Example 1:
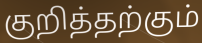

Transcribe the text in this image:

குறித்தற்கும்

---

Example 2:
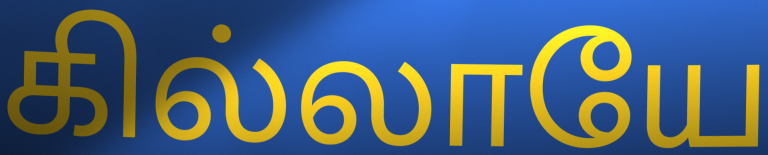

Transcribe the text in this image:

கில்லாயே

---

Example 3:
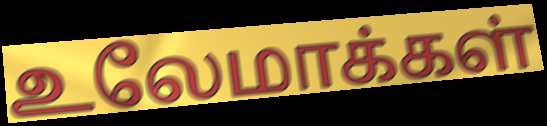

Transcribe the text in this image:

உலேமாக்கள்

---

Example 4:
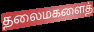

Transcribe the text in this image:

தலைமகளைத்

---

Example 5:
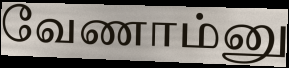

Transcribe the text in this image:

வேணாம்னு